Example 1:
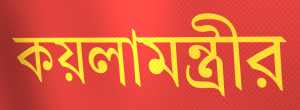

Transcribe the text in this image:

কয়লামন্ত্রীর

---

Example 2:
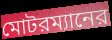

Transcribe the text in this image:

মোটরম্যানের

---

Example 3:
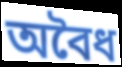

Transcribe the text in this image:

অবৈধ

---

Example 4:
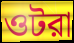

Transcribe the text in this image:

ওটরা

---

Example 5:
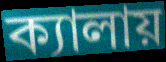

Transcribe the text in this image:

ক্যালায়